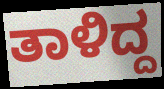
ತಾಳಿದ್ದ